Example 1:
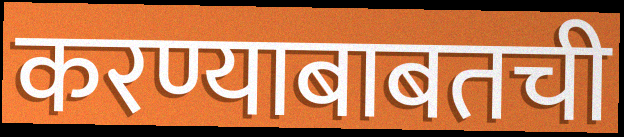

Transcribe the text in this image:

करण्याबाबतची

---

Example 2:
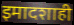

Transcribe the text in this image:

इमादशाही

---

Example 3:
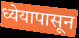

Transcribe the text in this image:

ध्येयापासून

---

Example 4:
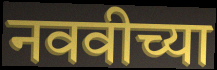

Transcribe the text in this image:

नववीच्या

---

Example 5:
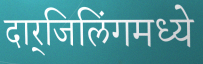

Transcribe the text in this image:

दार्जिलिंगमध्ये